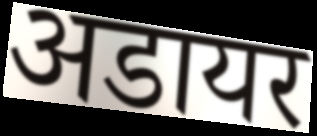
अडायर